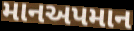
માનઅપમાન